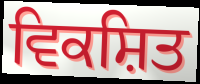
ਵਿਕਸ਼ਿਤ